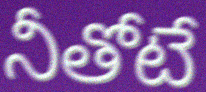
నీతోటే